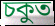
চকুত